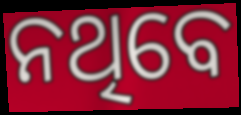
ନଥିବେ